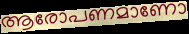
ആരോപണമാണോ